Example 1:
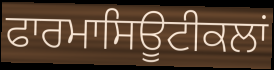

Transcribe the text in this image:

ਫਾਰਮਾਸਿਊਟੀਕਲਾਂ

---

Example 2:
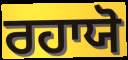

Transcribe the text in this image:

ਰਹਾਯੋ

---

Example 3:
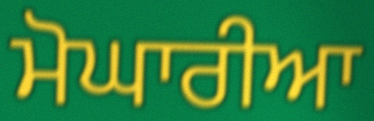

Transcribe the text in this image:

ਮੋਘਾਰੀਆ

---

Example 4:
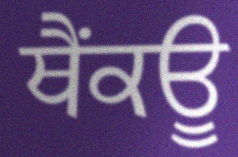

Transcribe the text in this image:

ਥੈਂਕਊ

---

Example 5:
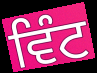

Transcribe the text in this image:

ਵਿੰਟ